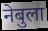
नेबुला